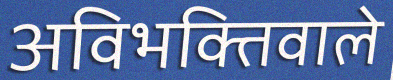
अविभक्तिवाले